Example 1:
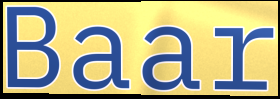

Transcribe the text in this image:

Baar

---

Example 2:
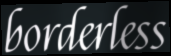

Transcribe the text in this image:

borderless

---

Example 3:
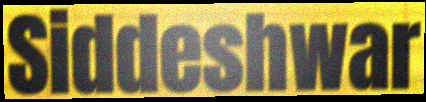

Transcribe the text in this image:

Siddeshwar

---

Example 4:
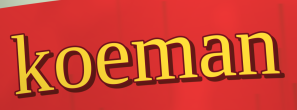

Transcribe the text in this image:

koeman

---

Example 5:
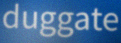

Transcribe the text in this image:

duggate